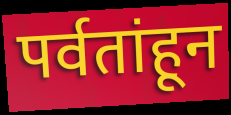
पर्वतांहून